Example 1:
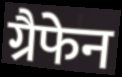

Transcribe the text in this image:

ग्रैफेन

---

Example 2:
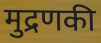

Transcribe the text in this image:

मुद्रणकी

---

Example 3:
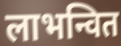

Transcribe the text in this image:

लाभन्वित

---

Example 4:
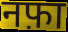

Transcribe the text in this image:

नफ़ा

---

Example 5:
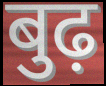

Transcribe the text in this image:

बुढ़